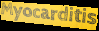
Myocarditis